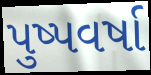
પુષ્પવર્ષા